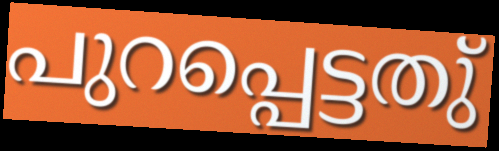
പുറപ്പെട്ടതു്